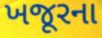
ખજૂરના